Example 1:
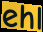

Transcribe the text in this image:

ehl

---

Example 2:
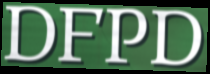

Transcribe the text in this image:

DFPD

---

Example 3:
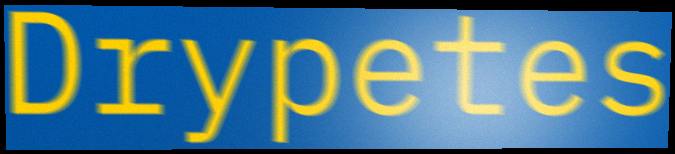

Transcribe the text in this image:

Drypetes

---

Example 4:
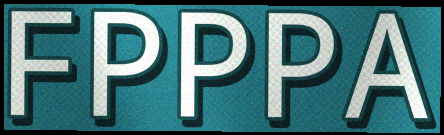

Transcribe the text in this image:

FPPPA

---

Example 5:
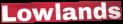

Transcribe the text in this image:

Lowlands